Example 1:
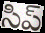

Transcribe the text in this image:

సిప్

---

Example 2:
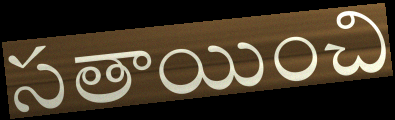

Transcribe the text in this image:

సతాయించి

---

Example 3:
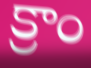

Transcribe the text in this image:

క్రాం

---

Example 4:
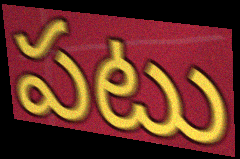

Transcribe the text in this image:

పటు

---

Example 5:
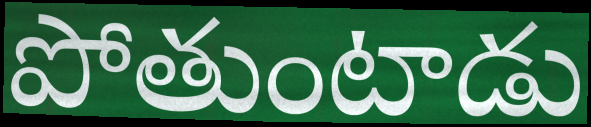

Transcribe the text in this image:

పోతుంటాడు